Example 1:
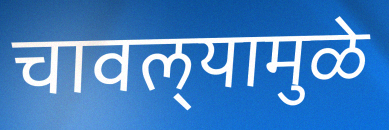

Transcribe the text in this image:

चावल्यामुळे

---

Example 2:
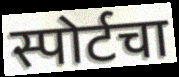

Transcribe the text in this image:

स्पोर्टचा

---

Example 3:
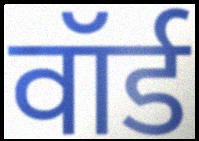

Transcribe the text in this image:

वॉर्ड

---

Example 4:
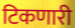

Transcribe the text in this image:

टिकणारी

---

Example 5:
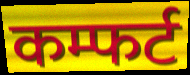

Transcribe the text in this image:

कम्फर्ट